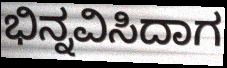
ಭಿನ್ನವಿಸಿದಾಗ